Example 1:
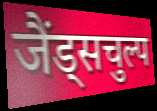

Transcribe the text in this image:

जैंड्सचुल्प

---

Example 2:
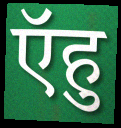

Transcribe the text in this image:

ऍहु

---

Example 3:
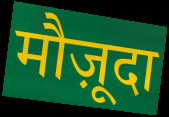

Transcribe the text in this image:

मौज़ूदा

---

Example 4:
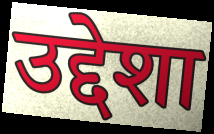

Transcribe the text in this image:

उद्देशा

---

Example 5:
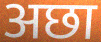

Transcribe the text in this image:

अछा